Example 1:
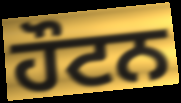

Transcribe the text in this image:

ਹੌਟਨ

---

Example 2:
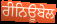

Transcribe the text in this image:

ਰੀਨਿਊਬੇਲ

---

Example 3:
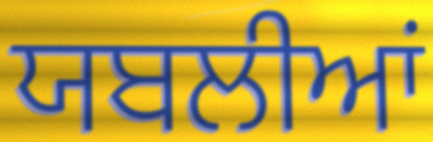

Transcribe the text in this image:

ਯਬਲੀਆਂ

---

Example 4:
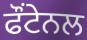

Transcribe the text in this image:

ਫੌਂਟੇਨਲ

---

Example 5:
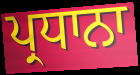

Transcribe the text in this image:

ਪ੍ਰਧਾਨਾ